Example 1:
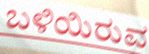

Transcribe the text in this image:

ಬಳಿಯಿರುವ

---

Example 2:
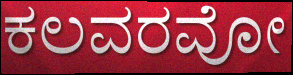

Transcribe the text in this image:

ಕಲವರವೋ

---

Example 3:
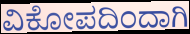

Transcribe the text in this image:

ವಿಕೋಪದಿಂದಾಗಿ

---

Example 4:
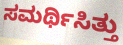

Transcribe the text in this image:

ಸಮರ್ಥಿಸಿತ್ತು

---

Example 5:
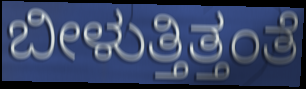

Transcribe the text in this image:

ಬೀಳುತ್ತಿತ್ತಂತೆ